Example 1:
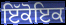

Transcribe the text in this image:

ਇੱਕੋਇਕ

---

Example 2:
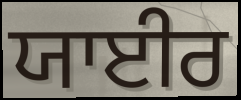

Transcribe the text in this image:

ਯਾਈਰ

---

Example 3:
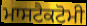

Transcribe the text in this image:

ਮਾਸਟੈਕਟੋਮੀ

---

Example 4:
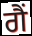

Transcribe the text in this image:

ਗੈਂ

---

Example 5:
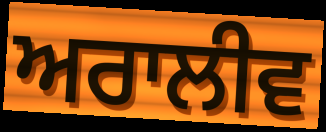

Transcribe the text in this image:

ਅਰਾਲੀਵ